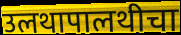
उलथापालथीचा